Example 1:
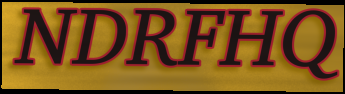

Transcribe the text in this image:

NDRFHQ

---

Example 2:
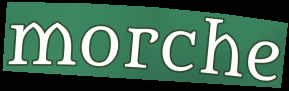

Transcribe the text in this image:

morche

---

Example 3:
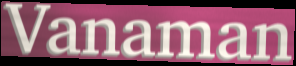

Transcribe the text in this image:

Vanaman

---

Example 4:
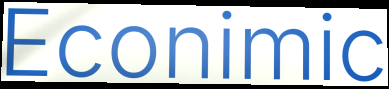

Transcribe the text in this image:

Econimic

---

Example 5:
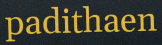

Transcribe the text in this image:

padithaen